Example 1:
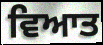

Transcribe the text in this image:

ਵਿਆਤ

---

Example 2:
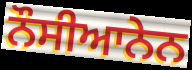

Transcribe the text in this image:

ਨੌਸੀਆਨੇਨ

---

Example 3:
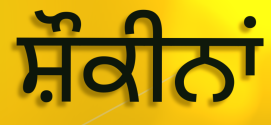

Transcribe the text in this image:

ਸ਼ੌਕੀਨਾਂ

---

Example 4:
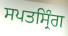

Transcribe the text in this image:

ਸਪਤਸ੍ਰਿੰਗ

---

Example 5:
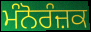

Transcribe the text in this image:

ਮੰਨੋਰੰਜ਼ਕ